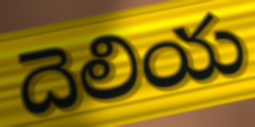
దెలియ